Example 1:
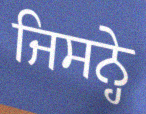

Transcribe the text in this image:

ਜਿਸਨ੍ਹੇ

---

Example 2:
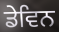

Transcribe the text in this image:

ਡੇਵਿਨ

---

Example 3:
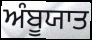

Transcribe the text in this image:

ਅੰਬੂਯਾਤ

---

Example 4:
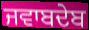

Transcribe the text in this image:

ਜਵਾਬਦੇਬ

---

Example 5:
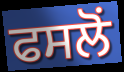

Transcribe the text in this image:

ਫਸਲੋਂ